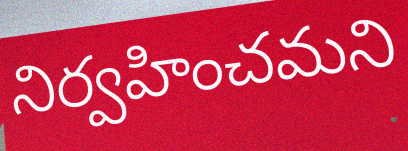
నిర్వహించమని